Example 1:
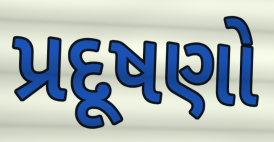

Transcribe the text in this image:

પ્રદૂષણો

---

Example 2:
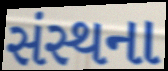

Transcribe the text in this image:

સંસ્થના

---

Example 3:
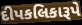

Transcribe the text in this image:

દીપકલિકારૂપે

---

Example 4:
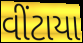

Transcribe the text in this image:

વીંટાયા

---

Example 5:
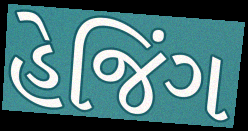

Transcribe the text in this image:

હેજિંગ